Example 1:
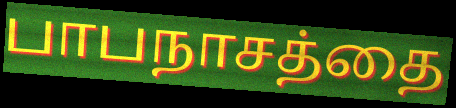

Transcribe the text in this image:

பாபநாசத்தை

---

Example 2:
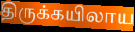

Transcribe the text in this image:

திருக்கயிலாய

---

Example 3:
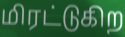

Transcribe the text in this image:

மிரட்டுகிற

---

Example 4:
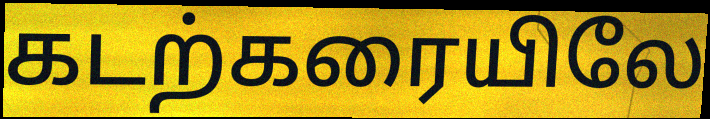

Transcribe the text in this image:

கடற்கரையிலே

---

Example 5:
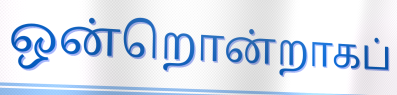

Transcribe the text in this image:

ஒன்றொன்றாகப்